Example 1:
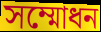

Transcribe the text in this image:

সম্মোধন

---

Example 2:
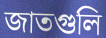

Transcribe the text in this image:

জাতগুলি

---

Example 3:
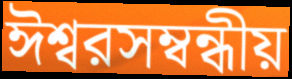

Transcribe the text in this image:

ঈশ্বরসম্বন্ধীয়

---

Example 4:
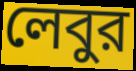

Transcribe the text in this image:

লেবুর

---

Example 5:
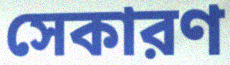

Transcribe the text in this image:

সেকারণ